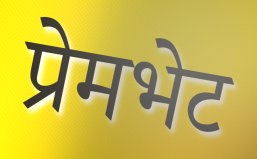
प्रेमभेट